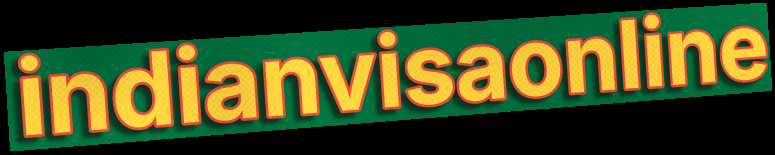
indianvisaonline